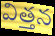
విత్తన